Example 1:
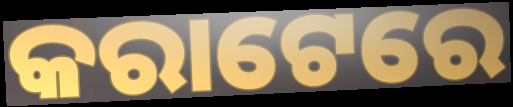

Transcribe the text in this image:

କରାଟେରେ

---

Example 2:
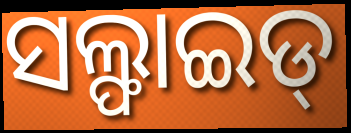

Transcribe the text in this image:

ସଲ୍ଫାଇଡ୍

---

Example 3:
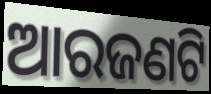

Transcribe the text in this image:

ଆରଜଣଟି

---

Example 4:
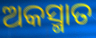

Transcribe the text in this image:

ଅକସ୍ମାତ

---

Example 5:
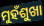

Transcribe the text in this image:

ମୁହଁଶୁଖା